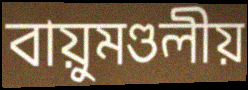
বায়ুমণ্ডলীয়